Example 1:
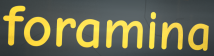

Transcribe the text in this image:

foramina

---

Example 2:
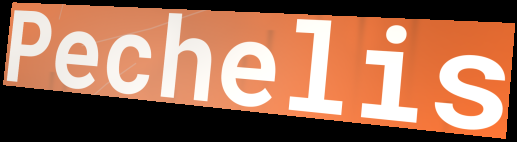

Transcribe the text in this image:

Pechelis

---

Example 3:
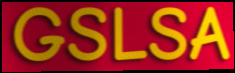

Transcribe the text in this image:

GSLSA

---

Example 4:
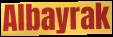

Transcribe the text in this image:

Albayrak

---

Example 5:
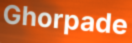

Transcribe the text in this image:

Ghorpade